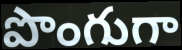
పొంగుగా